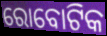
ରୋବୋଟିକ